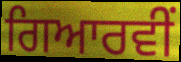
ਗਿਆਰਵੀਂ